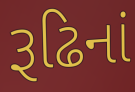
રૂઢિનાં